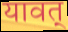
यावत्